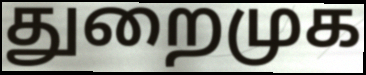
துறைமுக